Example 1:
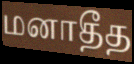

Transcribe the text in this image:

மனாதீத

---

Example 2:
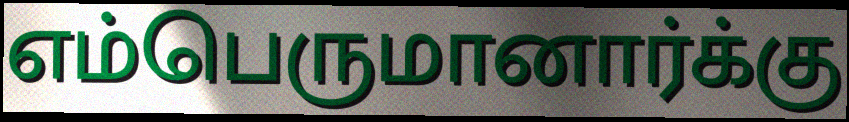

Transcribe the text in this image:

எம்பெருமானார்க்கு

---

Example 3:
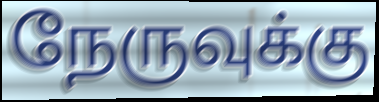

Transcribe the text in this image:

நேருவுக்கு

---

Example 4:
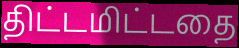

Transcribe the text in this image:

திட்டமிட்டதை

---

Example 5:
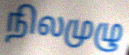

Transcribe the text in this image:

நிலமுழு